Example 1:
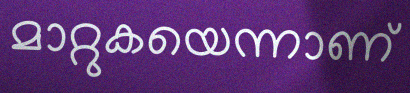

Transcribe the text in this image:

മാറ്റുകയെന്നാണ്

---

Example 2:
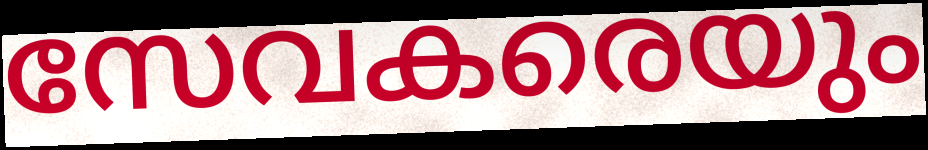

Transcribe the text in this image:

സേവകരെയും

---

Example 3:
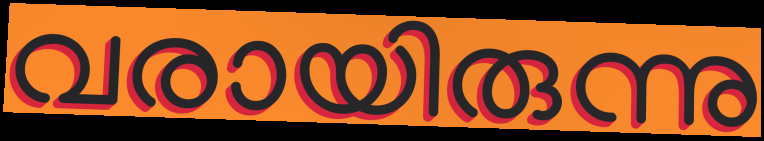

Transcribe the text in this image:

വരായിരുന്നു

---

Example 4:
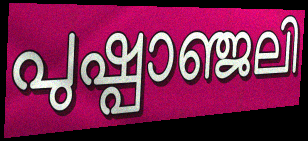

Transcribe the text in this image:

പുഷ്പാഞ്ജലി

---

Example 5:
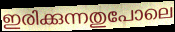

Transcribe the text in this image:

ഇരിക്കുന്നതുപോലെ